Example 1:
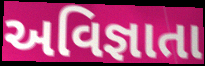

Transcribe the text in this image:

અવિજ્ઞાતા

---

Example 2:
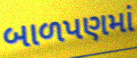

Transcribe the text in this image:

બાળપણમાં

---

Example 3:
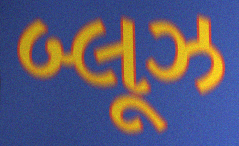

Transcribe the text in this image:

બ્લૂઝ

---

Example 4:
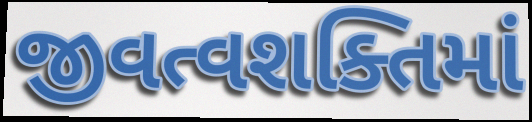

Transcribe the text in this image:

જીવત્વશક્તિમાં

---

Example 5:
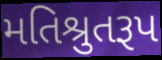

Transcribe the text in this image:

મતિશ્રુતરૂપ